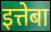
इत्तेबा